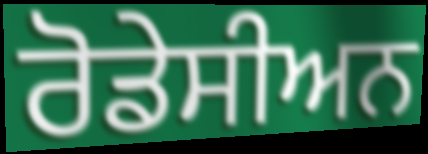
ਰੋਡੇਸੀਅਨ